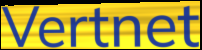
Vertnet